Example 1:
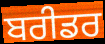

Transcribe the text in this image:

ਬਰੀਡਰ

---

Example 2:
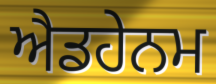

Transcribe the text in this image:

ਐਡਹੇਨਮ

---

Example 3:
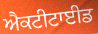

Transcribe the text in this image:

ਐਕਟੀਟਾਈਡ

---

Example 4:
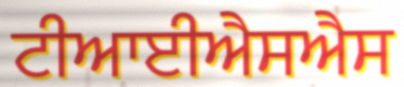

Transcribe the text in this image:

ਟੀਆਈਐਸਐਸ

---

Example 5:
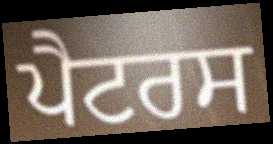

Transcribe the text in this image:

ਪੈਟਰਸ